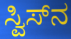
ಸ್ವಿಸ್‌ನ